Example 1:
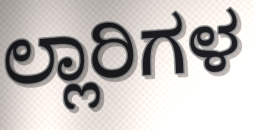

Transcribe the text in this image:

ಲ್ಲಾರಿಗಳ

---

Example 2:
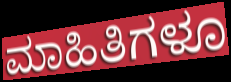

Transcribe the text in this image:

ಮಾಹಿತಿಗಳೂ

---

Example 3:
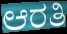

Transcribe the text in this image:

ಆರತಿ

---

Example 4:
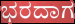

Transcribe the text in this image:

ಭರದಾಗ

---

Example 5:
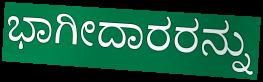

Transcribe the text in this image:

ಭಾಗೀದಾರರನ್ನು